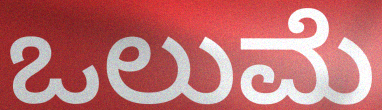
ಒಲುಮೆ